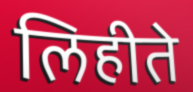
लिहीते